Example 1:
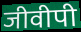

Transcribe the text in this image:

जीवीपी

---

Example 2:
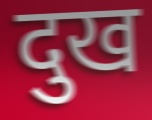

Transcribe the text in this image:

दुख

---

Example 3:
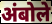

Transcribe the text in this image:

अंबोले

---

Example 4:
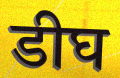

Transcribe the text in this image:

डीघ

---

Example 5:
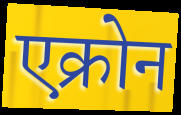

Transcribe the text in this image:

एक्रोन